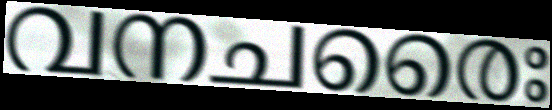
വനചരൈഃ